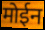
मोईन